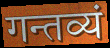
गन्तव्यं